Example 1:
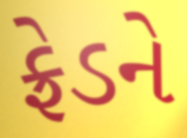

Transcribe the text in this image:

ફ્રેડને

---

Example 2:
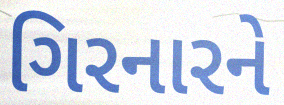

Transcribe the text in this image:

ગિરનારને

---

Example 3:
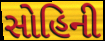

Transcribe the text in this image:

સોહિની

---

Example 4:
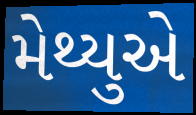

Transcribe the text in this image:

મેથ્યુએ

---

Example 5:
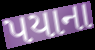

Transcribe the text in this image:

પયાના